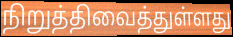
நிறுத்திவைத்துள்ளது